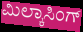
ಮಿಲ್ಕಾಸಿಂಗ್